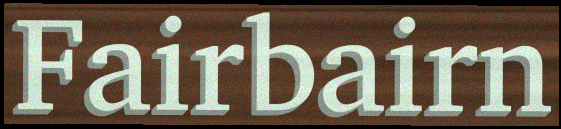
Fairbairn